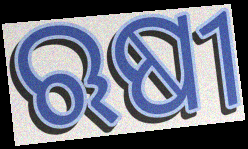
ଋଷୀ